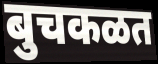
बुचकळत